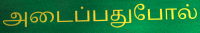
அடைப்பதுபோல்